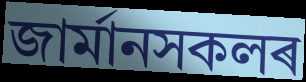
জাৰ্মানসকলৰ